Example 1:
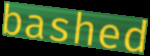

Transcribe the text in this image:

bashed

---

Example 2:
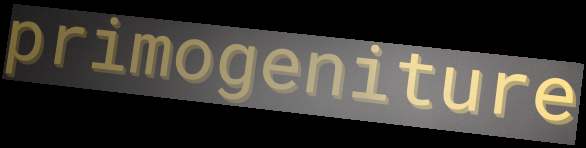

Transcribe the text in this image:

primogeniture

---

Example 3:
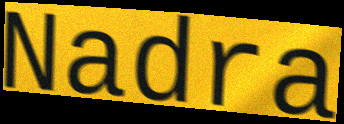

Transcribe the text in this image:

Nadra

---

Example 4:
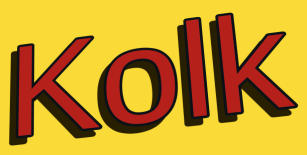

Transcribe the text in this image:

Kolk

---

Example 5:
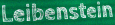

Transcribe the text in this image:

Leibenstein